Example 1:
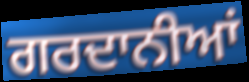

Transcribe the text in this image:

ਗਰਦਾਨੀਆਂ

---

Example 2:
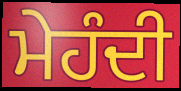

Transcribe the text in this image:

ਮੇਹੰਦੀ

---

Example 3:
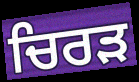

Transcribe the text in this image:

ਚਿਰੜ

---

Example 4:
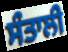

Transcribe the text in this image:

ਸੰਤਾਲੀ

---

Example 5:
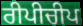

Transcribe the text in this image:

ਰੀਪੀਚੀਪ